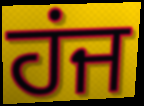
ਹਂਜ